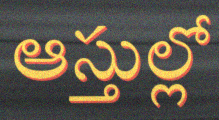
ఆస్తుల్లో